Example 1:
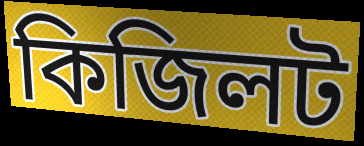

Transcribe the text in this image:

কিজিলট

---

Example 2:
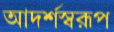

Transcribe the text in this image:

আদর্শস্বরূপ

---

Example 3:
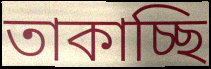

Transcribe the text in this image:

তাকাচ্ছি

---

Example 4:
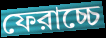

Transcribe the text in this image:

ফেরাচ্চে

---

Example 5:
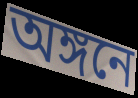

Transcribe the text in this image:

অঙ্গনে